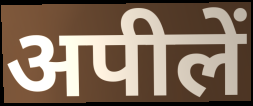
अपीलें